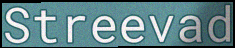
Streevad